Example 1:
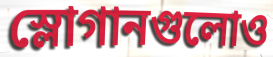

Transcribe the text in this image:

স্লোগানগুলোও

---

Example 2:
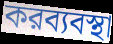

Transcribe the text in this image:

করব্যবস্থা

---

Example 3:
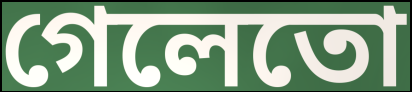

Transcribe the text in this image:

গেলেতো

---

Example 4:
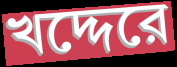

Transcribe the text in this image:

খদ্দেরে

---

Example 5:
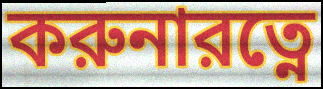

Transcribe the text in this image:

করুনারত্নে